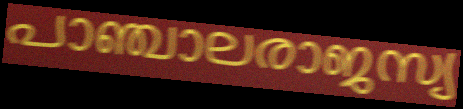
പാഞ്ചാലരാജസ്യ